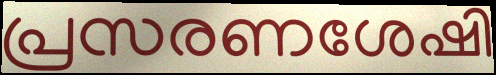
പ്രസരണശേഷി